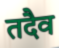
तदैव